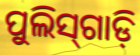
ପୁଲିସ୍‌ଗାଡ଼ି